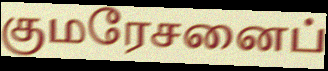
குமரேசனைப்